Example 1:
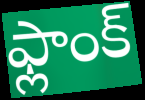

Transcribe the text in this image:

ఫ్లాంక్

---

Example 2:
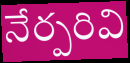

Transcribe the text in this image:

నేర్పరివి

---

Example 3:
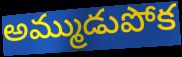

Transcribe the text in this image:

అమ్ముడుపోక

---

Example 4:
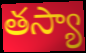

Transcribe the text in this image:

తస్యా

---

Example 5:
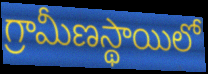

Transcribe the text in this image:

గ్రామీణస్థాయిలో